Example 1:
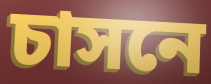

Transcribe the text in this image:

চাসনে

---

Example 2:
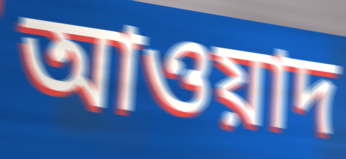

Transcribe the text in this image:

আওয়াদ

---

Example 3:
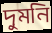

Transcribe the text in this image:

দুমনি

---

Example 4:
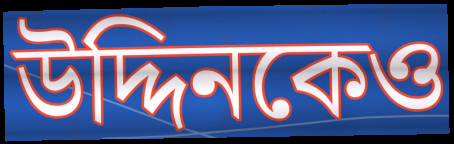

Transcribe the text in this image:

উদ্দিনকেও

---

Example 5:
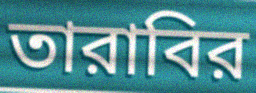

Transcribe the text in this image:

তারাবির